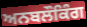
ਅਨਬਲੌਕਿੰਗ